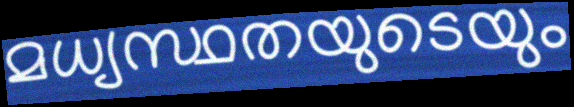
മധ്യസ്ഥതയുടെയും